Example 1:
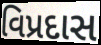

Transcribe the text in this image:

વિપ્રદાસ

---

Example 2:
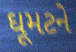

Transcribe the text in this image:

ઘૂમટને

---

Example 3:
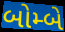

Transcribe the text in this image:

બોમ્બે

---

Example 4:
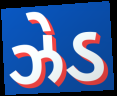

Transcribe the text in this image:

ઝેડ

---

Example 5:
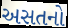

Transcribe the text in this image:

અસતનો